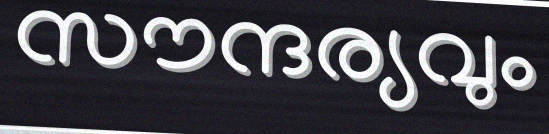
സൗന്ദര്യവും